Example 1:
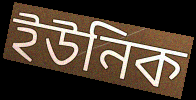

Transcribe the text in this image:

ইউনিক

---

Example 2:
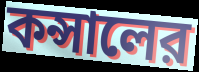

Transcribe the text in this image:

কন্সালের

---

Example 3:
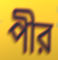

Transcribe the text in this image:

পীর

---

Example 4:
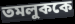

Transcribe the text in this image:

তমলুককে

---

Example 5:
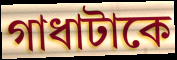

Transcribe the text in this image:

গাধাটাকে